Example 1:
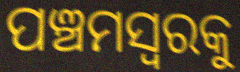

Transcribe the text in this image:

ପଞ୍ଚମସ୍ୱରକୁ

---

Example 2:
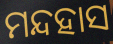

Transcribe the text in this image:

ମନ୍ଦହାସ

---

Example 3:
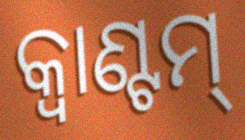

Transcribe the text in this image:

କ୍ୱାଣ୍ଟମ୍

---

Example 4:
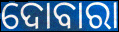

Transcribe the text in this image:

ଦୋବାରା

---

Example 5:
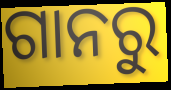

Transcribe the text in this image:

ଗାନରୁ